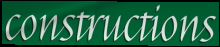
constructions